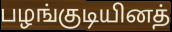
பழங்குடியினத்